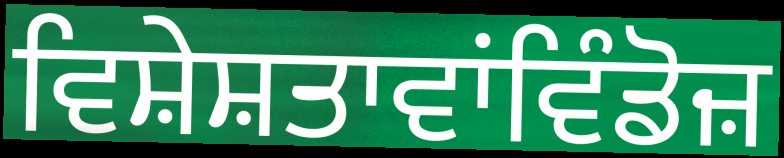
ਵਿਸ਼ੇਸ਼ਤਾਵਾਂਵਿੰਡੋਜ਼